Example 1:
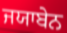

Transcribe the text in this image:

ਜਯਾਬੇਨ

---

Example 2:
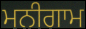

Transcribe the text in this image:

ਮਨੀਗਾਮ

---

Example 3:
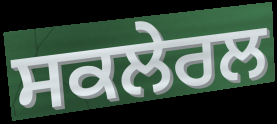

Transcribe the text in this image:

ਸਕਲੇਰਲ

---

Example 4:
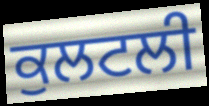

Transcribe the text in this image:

ਕੁਲਟਲੀ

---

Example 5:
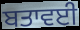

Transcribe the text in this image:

ਬਤਾਵਈ